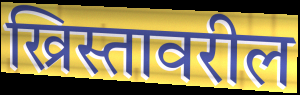
ख्रिस्तावरील